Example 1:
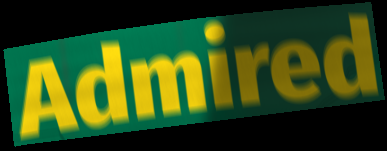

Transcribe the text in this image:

Admired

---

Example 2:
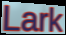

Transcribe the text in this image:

Lark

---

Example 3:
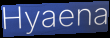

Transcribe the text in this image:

Hyaena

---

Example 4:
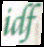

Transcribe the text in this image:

idf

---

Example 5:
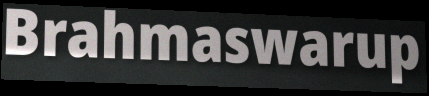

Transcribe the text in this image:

Brahmaswarup